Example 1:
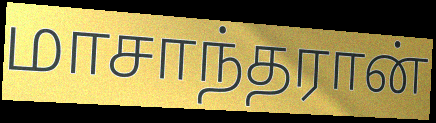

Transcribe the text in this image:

மாசாந்தரான்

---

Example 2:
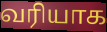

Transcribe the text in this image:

வரியாக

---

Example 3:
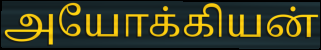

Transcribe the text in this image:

அயோக்கியன்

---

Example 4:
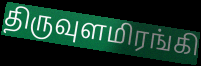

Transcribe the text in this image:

திருவுளமிரங்கி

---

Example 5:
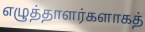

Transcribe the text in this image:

எழுத்தாளர்களாகத்